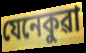
যেনেকুৱা